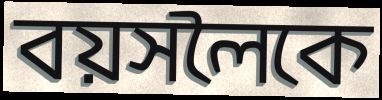
বয়সলৈকে